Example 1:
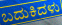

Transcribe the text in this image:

ಬದುಕಿದಳು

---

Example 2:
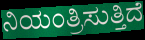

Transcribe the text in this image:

ನಿಯಂತ್ರಿಸುತ್ತಿದೆ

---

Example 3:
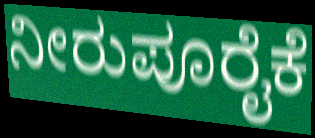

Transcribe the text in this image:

ನೀರುಪೂರೈಕೆ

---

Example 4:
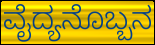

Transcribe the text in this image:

ವೈದ್ಯನೊಬ್ಬನ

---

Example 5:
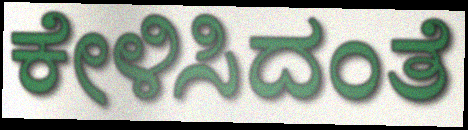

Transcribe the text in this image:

ಕೇಳಿಸಿದಂತೆ